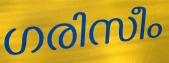
ഗരിസീം